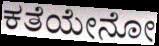
ಕತೆಯೇನೋ